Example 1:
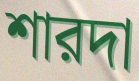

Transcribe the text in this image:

শারদা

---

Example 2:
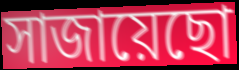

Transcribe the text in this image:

সাজায়েছো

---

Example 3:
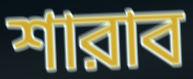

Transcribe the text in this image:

শারাব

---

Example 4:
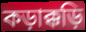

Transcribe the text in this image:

কড়াক্কড়ি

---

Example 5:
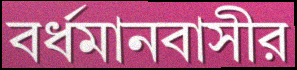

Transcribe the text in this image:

বর্ধমানবাসীর